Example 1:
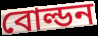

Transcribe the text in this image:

বোল্ডন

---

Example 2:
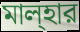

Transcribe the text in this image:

মাল্হার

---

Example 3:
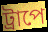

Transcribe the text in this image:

ট্রাপে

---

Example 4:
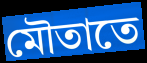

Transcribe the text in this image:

মৌতাতে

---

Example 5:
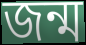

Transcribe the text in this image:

জন্ম